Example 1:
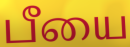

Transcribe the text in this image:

பீயை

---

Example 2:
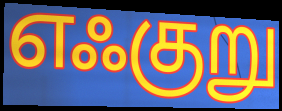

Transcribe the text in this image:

எஃகுறு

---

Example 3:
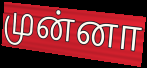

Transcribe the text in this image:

முன்னா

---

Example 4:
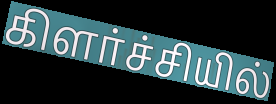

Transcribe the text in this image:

கிளர்ச்சியில்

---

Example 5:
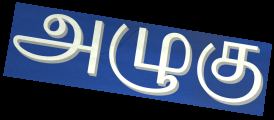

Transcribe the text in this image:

அழுகு